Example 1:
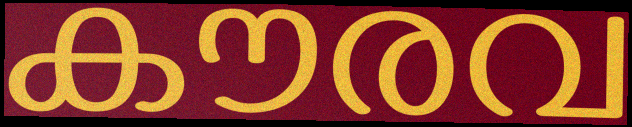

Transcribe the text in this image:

കൗരവ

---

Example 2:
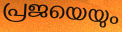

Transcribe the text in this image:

പ്രജയെയും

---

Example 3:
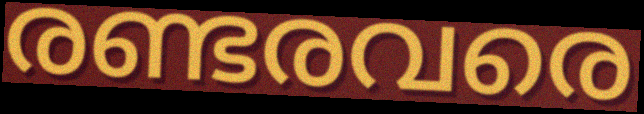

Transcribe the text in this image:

രണ്ടരവരെ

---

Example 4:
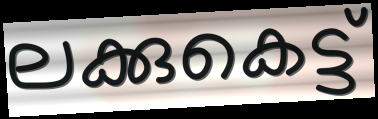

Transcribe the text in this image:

ലക്കുകെട്ട്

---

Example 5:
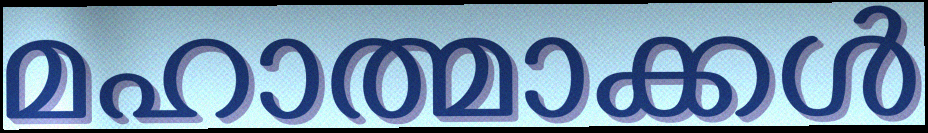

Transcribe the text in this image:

മഹാത്മാക്കൾ